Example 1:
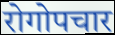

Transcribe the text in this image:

रोगोपचार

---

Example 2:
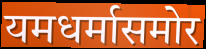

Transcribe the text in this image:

यमधर्मासमोर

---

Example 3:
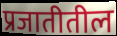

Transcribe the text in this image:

प्रजातीतील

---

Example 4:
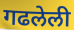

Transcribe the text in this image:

गढलेली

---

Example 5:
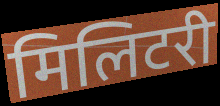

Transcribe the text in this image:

मिलिटरी